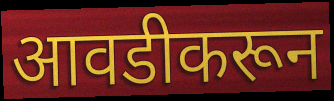
आवडीकरून